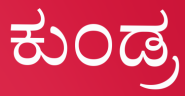
ಕುಂಡ್ರ